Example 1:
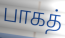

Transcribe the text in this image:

பாகத்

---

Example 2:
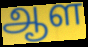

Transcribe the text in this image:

ஆள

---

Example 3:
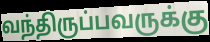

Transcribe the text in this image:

வந்திருப்பவருக்கு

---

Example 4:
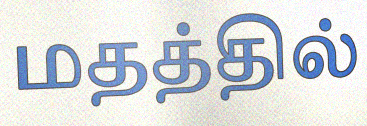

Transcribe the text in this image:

மதத்தில்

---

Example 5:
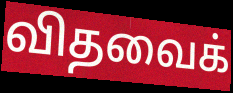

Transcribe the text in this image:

விதவைக்